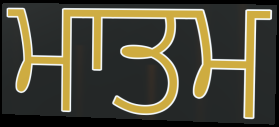
ਮਾਤਮ